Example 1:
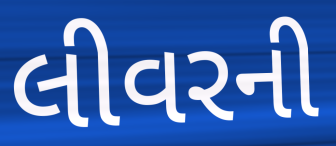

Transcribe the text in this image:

લીવરની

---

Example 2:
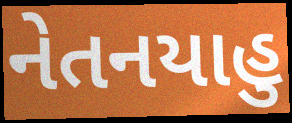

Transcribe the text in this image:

નેતનયાહુ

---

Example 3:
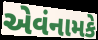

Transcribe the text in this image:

એવંનામકે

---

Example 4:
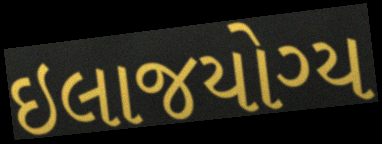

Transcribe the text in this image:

ઇલાજયોગ્ય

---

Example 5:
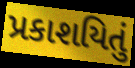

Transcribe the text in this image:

પ્રકાશયિતું